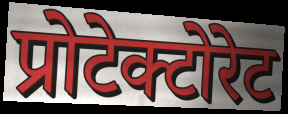
प्रोटेक्टोरेट